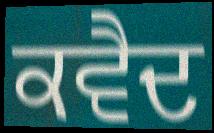
ਕਵੈਦ